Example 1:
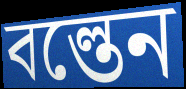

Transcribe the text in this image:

বল্তেন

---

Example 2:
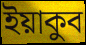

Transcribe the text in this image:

ইয়াকুব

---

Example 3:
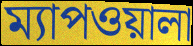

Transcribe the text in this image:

ম্যাপওয়ালা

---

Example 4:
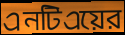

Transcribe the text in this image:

এনটিএয়ের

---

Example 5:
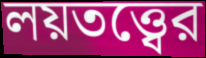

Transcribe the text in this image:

লয়তত্ত্বের